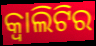
କ୍ୱାଲିଟିର